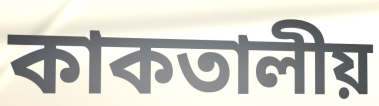
কাকতালীয়